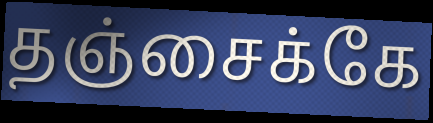
தஞ்சைக்கே